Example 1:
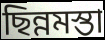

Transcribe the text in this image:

ছিন্নমস্তা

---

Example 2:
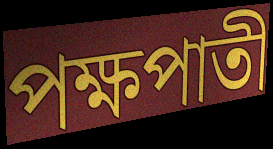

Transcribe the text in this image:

পক্ষপাতী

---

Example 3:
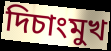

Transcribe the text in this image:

দিচাংমুখ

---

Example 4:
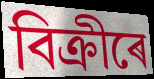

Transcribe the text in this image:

বিক্ৰীৰে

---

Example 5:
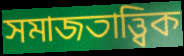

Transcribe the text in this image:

সমাজতাত্ত্বিক